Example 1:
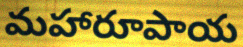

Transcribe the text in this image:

మహారూపాయ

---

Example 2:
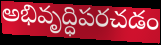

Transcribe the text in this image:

అభివృద్ధిపరచడం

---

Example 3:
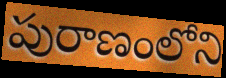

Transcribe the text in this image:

పురాణంలోని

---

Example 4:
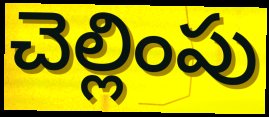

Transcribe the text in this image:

చెల్లింపు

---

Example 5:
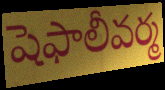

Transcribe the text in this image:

షెఫాలీవర్మ